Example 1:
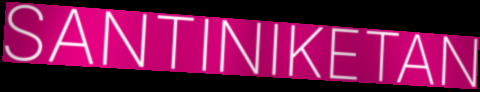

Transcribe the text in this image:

SANTINIKETAN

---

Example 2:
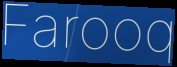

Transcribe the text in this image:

Farooq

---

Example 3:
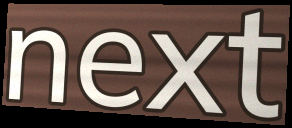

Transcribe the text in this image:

next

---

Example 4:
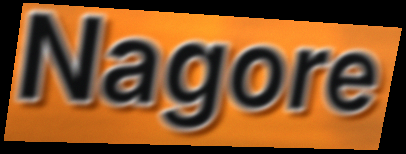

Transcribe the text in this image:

Nagore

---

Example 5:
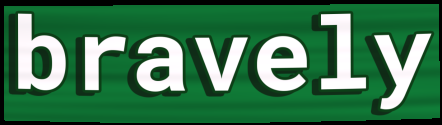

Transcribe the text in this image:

bravely